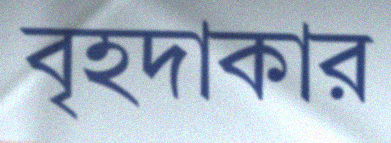
বৃহদাকার